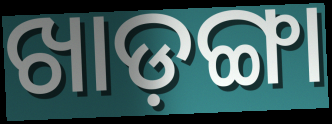
ଖାଡ଼ଙ୍ଗା